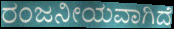
ರಂಜನೀಯವಾಗಿದೆ